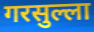
गरसुल्ला